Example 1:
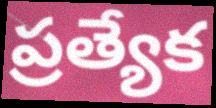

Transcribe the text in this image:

ప్రత్యేక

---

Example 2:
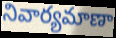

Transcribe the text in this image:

నివార్యమాణా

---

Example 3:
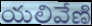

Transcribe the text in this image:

యలివేణి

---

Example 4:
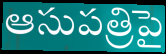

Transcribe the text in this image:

ఆసుపత్రిపై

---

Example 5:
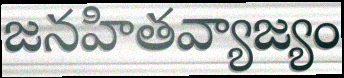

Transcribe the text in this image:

జనహితవ్యాజ్యం